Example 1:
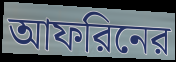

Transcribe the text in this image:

আফরিনের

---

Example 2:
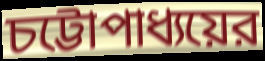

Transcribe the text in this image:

চট্টোপাধ্যয়ের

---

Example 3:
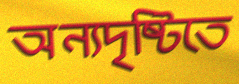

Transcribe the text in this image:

অন্যদৃষ্টিতে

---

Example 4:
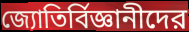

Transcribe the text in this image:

জ্যোতির্বিজ্ঞানীদের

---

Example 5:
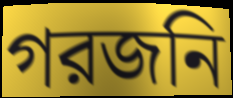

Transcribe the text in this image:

গরজনি